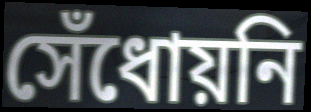
সেঁধোয়নি